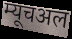
म्यूचअल